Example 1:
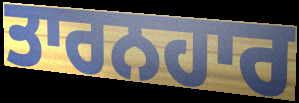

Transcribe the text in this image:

ਤਾਰਨਹਾਰ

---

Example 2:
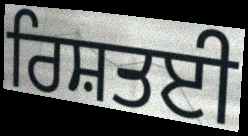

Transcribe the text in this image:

ਰਿਸ਼ਤਈ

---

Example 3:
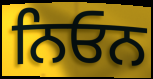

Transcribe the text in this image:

ਨਿਓਨ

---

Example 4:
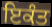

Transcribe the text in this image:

ਇਕੰਤ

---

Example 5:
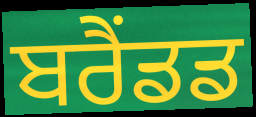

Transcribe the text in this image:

ਬਰੈਂਡਡ